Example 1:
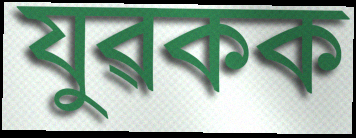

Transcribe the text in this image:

যুৱকক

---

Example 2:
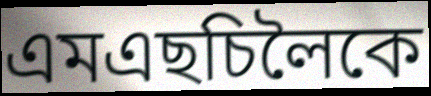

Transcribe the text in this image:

এমএছচিলৈকে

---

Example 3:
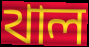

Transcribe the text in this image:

থাল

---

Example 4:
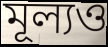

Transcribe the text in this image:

মূল্যও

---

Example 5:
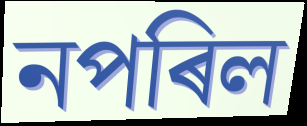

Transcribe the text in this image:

নপৰিল